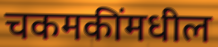
चकमकींमधील